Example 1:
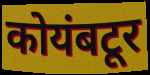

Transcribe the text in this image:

कोयंबटूर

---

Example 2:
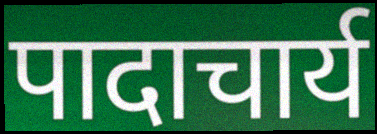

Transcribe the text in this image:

पादाचार्य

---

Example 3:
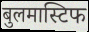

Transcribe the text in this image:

बुलमास्टिफ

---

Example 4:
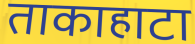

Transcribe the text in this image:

ताकाहाटा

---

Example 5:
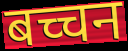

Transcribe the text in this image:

बच्‍चन